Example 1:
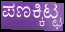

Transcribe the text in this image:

ಪಣಕ್ಕಿಟ್ಟ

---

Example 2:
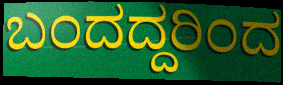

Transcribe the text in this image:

ಬಂದದ್ದರಿಂದ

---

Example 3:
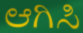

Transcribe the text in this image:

ಆಗಿಸಿ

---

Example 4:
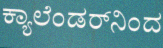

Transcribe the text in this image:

ಕ್ಯಾಲೆಂಡರ್‌ನಿಂದ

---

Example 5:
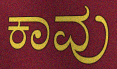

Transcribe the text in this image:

ಕಾವು